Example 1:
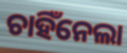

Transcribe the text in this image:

ଚାହିଁନେଲା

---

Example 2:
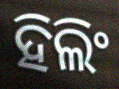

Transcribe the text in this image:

ହିଲିଂ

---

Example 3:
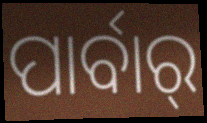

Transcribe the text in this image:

ପାର୍ବାର୍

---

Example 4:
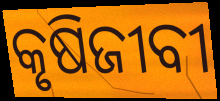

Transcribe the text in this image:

କୃଷିଜୀବୀ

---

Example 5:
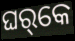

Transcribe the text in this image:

ଘର୍‌କେ